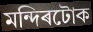
মন্দিৰটোক